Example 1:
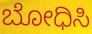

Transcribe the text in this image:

ಬೋಧಿಸಿ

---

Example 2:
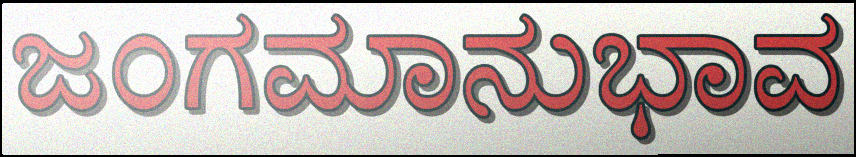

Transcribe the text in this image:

ಜಂಗಮಾನುಭಾವ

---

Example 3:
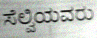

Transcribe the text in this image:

ಸೆಲ್ವಿಯವರು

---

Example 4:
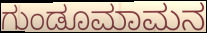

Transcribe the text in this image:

ಗುಂಡೂಮಾಮನ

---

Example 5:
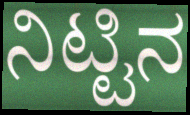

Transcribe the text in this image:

ನಿಟ್ಟಿನ